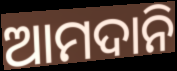
ଆମଦାନି